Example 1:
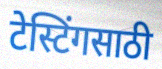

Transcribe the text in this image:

टेस्टिंगसाठी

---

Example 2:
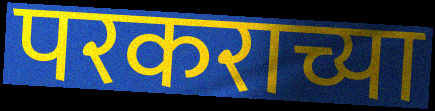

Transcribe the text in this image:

परकराच्या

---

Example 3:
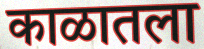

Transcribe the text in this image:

काळातला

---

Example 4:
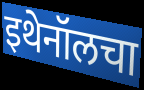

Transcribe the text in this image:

इथेनॉलचा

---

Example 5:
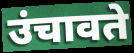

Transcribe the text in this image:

उंचावते